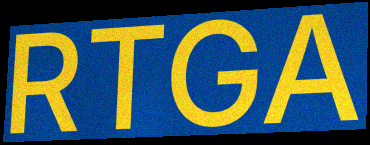
RTGA